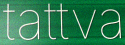
tattva